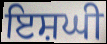
ਇਸ਼ਘੀ